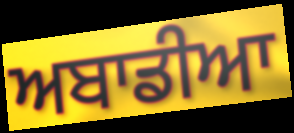
ਅਬਾਡੀਆ